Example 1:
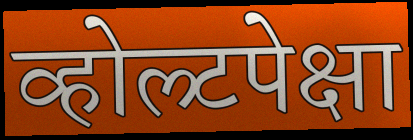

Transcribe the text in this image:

व्होल्टपेक्षा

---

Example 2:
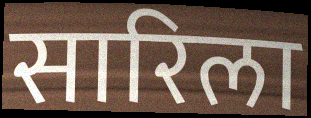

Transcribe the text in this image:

सारिला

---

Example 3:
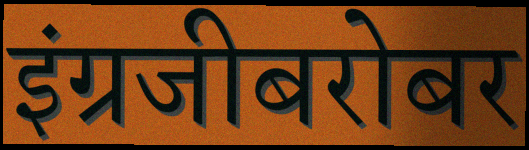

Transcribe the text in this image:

इंग्रजीबरोबर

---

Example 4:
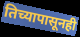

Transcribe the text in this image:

तिच्यापासूनही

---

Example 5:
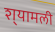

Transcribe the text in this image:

श्यामली